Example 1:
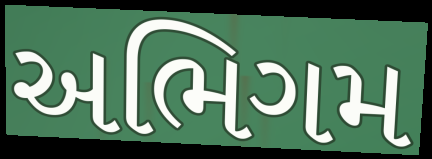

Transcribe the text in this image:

અભિગમ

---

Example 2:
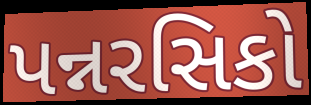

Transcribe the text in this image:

પન્નરસિકો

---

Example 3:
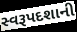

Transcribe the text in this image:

સ્વરૂપદશાની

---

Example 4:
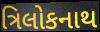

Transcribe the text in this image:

ત્રિલોકનાથ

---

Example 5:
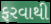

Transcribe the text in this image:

ફરવાથી